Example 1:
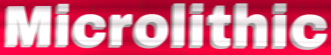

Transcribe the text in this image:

Microlithic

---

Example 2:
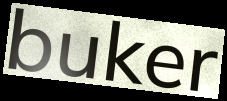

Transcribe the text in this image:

buker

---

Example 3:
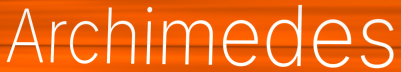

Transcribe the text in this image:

Archimedes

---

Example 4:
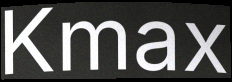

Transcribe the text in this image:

Kmax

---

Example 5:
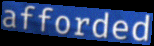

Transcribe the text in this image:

afforded